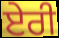
ਏਰੀ